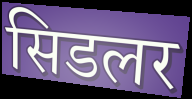
सिडलर